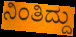
ನಿಂತಿದ್ದು